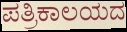
ಪತ್ರಿಕಾಲಯದ